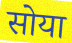
सोया